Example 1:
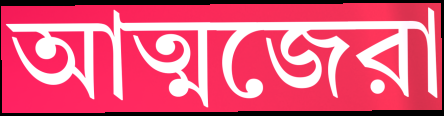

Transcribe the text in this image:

আত্মজেরা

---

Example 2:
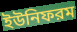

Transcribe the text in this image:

ইউনিফরম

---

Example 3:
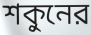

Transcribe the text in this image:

শকুনের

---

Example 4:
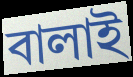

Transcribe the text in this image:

বালাই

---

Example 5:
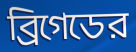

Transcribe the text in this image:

ব্রিগেডের